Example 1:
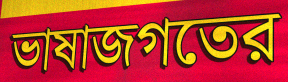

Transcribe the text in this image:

ভাষাজগতের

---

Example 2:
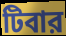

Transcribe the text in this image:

টিবার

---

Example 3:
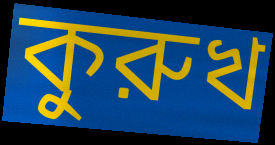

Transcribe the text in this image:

কুরুখ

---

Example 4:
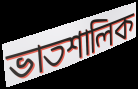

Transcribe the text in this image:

ভাতশালিক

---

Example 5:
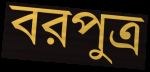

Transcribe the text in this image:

বরপুত্র